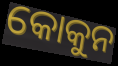
କୋକୁନ